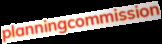
planningcommission